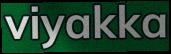
viyakka